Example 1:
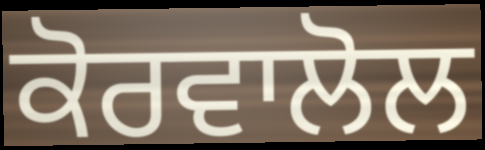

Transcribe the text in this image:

ਕੋਰਵਾਲੋਲ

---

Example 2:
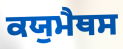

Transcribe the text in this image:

ਕਯੁਮੈਥਸ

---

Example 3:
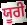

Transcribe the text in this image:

ਯੂਰੀ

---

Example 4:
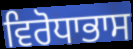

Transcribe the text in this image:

ਵਿਰੋਧਾਭਾਸ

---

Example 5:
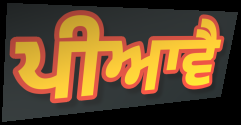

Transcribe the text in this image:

ਪੀਆਵੈ